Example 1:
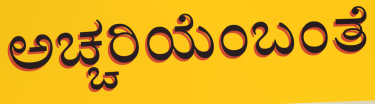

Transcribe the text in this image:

ಅಚ್ಚರಿಯೆಂಬಂತೆ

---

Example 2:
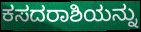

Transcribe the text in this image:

ಕಸದರಾಶಿಯನ್ನು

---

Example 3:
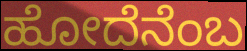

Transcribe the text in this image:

ಹೋದೆನೆಂಬ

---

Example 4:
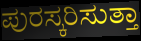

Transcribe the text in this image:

ಪುರಸ್ಕರಿಸುತ್ತಾ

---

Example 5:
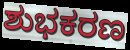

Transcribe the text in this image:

ಶುಭಕರಣ